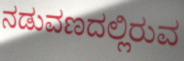
ನಡುವಣದಲ್ಲಿರುವ